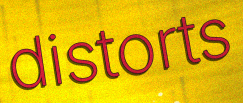
distorts